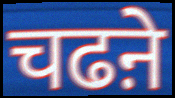
चढऩे